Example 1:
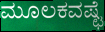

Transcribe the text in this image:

ಮೂಲಕವಷ್ಟೆ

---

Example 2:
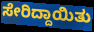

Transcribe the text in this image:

ಸೇರಿದ್ದಾಯಿತು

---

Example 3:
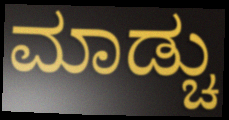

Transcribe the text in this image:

ಮಾಡ್ಚು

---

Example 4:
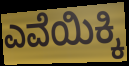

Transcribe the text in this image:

ಎವೆಯಿಕ್ಕಿ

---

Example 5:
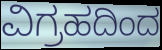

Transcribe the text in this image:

ವಿಗ್ರಹದಿಂದ